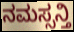
ನಮಸ್ಸನ್ತಿ